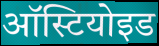
ऑस्टियोइड